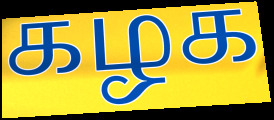
கழக